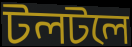
টলটলে